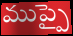
ముప్పై